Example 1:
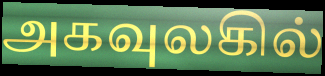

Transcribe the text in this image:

அகவுலகில்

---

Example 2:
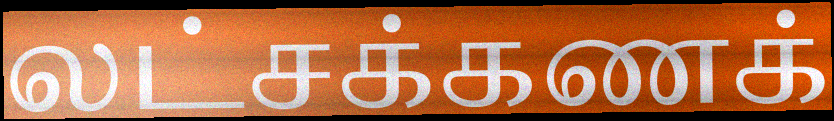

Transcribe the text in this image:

லட்சக்கணக்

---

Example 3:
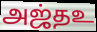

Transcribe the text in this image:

அஜ்தஉ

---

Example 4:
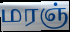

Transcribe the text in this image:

மரஞ்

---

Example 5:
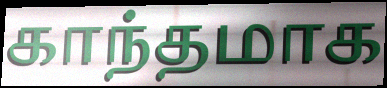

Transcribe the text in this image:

காந்தமாக